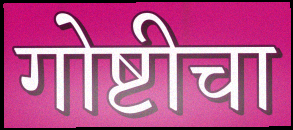
गोष्टीचा